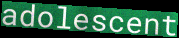
adolescent